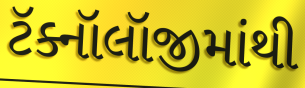
ટૅક્નૉલૉજીમાંથી